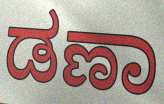
ಡಣಾ